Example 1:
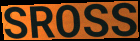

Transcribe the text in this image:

SROSS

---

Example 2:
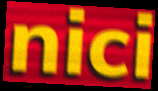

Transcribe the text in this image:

nici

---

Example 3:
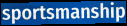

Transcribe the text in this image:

sportsmanship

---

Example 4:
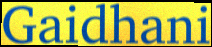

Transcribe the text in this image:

Gaidhani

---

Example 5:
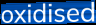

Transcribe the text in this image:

oxidised